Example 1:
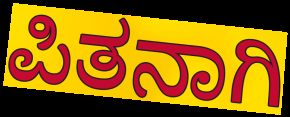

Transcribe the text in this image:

ಪಿತನಾಗಿ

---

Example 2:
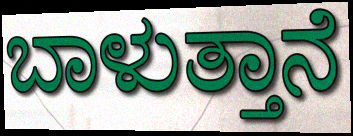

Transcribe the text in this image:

ಬಾಳುತ್ತಾನೆ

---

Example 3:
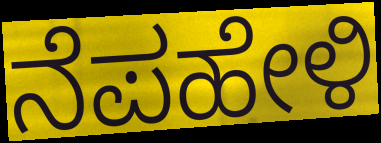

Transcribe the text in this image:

ನೆಪಹೇಳಿ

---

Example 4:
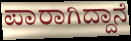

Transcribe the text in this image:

ಪಾರಾಗಿದ್ದಾನೆ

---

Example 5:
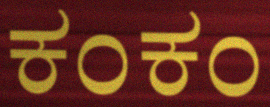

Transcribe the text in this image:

ಕಂಕಂ